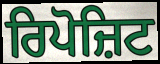
ਰਿਪੋਜ਼ਿਟ